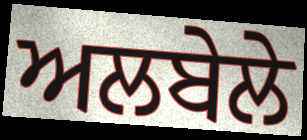
ਅਲਬੇਲੇ